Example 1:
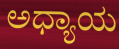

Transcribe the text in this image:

ಅಧ್ಯಾಯ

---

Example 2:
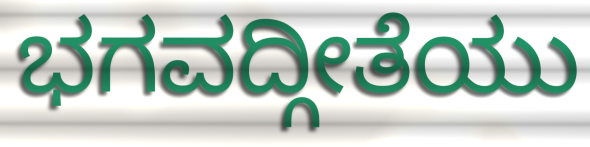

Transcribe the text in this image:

ಭಗವದ್ಗೀತೆಯು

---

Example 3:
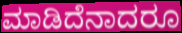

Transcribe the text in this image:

ಮಾಡಿದೆನಾದರೂ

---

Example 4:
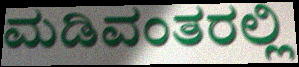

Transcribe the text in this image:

ಮಡಿವಂತರಲ್ಲಿ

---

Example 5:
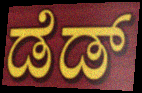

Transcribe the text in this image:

ಡೆಡ್